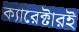
ক্যারেক্টারই